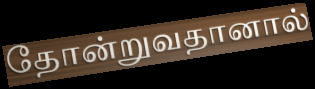
தோன்றுவதானால்